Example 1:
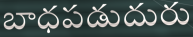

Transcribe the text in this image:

బాధపడుదురు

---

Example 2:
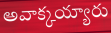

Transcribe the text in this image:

అవాక్కయ్యారు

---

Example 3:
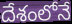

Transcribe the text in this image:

దేశంలోనే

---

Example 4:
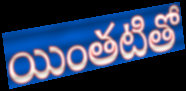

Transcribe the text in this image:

యింతటితో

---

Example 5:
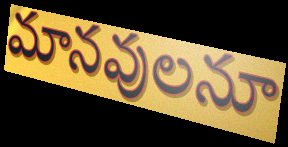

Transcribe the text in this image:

మానవులనూ